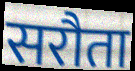
सरौता